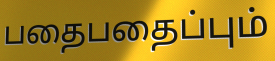
பதைபதைப்பும்